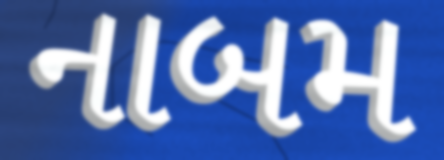
નાબમ